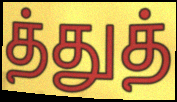
த்துத்